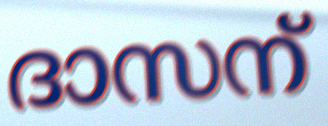
ദാസന്